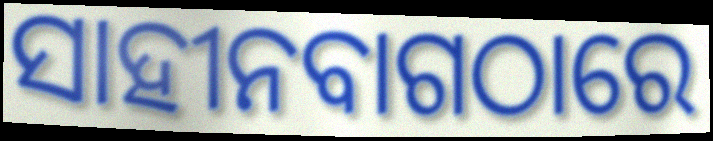
ସାହୀନବାଗଠାରେ